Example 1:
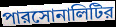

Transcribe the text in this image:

পারসোনালিটির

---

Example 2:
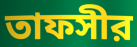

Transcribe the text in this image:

তাফসীর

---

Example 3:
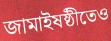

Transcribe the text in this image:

জামাইষষ্ঠীতেও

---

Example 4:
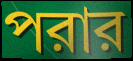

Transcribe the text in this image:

পরার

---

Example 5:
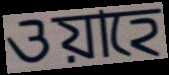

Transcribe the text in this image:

ওয়াহে